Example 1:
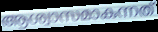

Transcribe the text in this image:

ആശ്വാസമാകുന്നത്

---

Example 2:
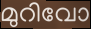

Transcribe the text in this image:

മുറിവോ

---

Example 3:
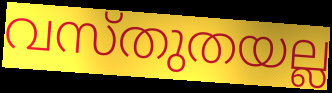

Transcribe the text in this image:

വസ്തുതയല്ല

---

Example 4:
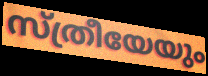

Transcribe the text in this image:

സ്ത്രീയേയും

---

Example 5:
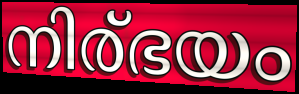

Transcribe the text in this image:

നിര്ഭയം